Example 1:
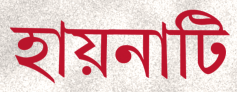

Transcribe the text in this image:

হায়নাটি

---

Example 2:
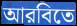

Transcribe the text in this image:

আরবিতে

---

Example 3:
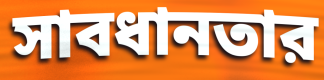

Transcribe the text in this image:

সাবধানতার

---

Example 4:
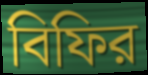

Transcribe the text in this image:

বিফির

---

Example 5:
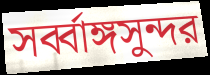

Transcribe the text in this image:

সর্ব্বাঙ্গসুন্দর